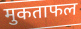
मुकताफल